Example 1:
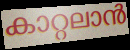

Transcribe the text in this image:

കാറ്റലാൻ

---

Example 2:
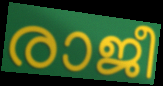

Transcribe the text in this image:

രാജീ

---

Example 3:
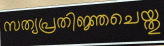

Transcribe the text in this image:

സത്യപ്രതിജ്ഞചെയ്തു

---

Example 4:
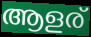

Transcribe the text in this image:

ആളര്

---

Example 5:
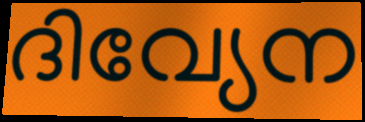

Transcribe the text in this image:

ദിവ്യേന